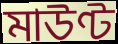
মাউণ্ট